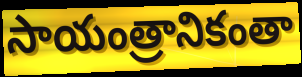
సాయంత్రానికంతా